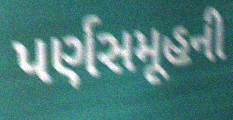
પર્ણસમૂહની